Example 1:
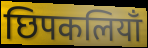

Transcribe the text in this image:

छिपकलियाँ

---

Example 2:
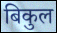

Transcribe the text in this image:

बिकुल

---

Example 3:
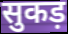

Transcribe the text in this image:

सुकड़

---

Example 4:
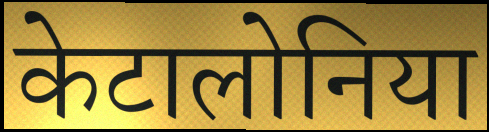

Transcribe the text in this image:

केटालोनिया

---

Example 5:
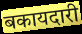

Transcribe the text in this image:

बकायदारी